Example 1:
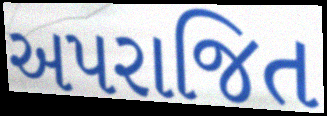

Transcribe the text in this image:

અપરાજિત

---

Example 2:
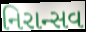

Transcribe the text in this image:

નિરાન્સવ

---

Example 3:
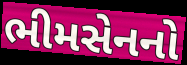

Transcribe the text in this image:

ભીમસેનનો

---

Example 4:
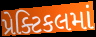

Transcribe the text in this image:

પ્રેક્ટિકલમાં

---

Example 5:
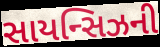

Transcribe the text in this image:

સાયન્સિઝની